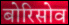
बोरिसोव